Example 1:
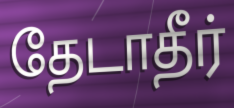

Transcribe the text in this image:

தேடாதீர்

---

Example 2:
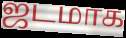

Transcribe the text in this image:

ஜடமாக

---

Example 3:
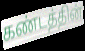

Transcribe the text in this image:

கண்டத்தின்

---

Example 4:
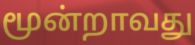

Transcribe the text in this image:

மூன்றாவது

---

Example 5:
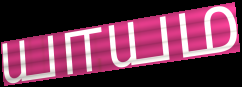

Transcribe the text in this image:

யாயம